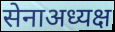
सेनाअध्यक्ष